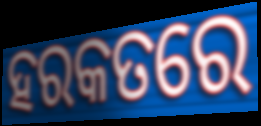
ହରକତରେ